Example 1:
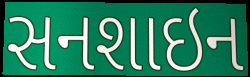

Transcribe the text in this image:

સનશાઇન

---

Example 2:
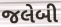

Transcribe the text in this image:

જલેબી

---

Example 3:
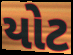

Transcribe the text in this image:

યોટ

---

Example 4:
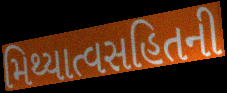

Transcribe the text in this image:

મિથ્યાત્વસહિતની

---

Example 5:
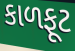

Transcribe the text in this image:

કાળફૂટ